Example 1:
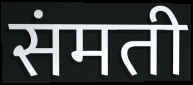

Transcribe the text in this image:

संमती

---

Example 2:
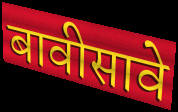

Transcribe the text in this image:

बावीसावे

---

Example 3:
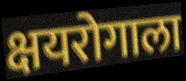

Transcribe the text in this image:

क्षयरोगाला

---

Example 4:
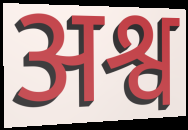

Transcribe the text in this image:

अश्व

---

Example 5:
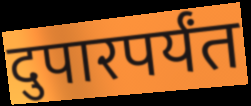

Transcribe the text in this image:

दुपारपर्यंत